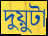
দুয়ুটা